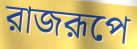
রাজরূপে